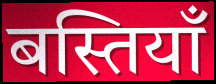
बस्तियाँ